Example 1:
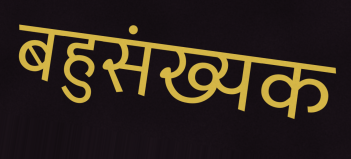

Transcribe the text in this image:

बहुसंख्यक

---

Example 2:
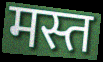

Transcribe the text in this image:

मस्‍त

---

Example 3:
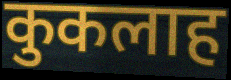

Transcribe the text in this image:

कुकलाह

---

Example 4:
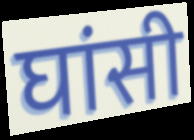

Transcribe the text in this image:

घांसी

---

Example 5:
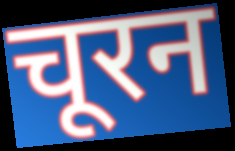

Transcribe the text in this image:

चूरन